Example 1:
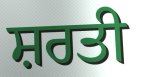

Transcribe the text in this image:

ਸ਼ਰਤੀ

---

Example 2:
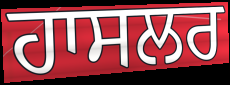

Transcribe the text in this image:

ਹਾਸਲਰ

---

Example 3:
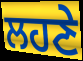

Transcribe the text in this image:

ਲਹਣੇ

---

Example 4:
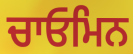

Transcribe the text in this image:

ਚਾਓਮਿਨ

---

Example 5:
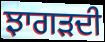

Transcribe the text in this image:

ਝਾਗੜਦੀ